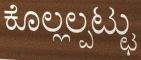
ಕೊಲ್ಲಲ್ಪಟ್ಟು